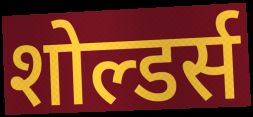
शोल्डर्स